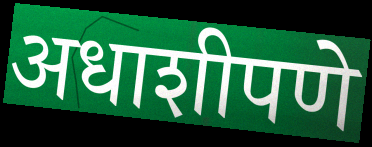
अधाशीपणे